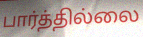
பார்த்தில்லை